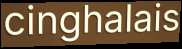
cinghalais